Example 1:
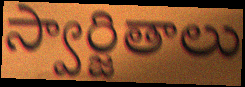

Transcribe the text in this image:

స్వార్జితాలు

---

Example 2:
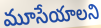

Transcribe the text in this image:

మూసేయాలని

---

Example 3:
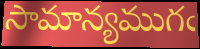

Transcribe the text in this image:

సామాన్యముగఁ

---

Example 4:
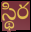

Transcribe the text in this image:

స్థిర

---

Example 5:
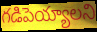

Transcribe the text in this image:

గడిపెయ్యాలని